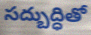
సద్బుద్ధితో